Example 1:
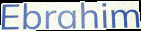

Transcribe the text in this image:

Ebrahim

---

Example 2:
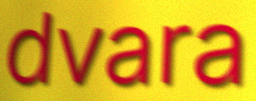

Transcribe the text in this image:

dvara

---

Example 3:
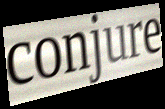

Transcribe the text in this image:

conjure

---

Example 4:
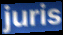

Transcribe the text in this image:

juris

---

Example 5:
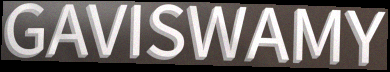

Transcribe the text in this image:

GAVISWAMY